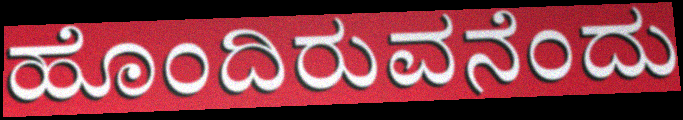
ಹೊಂದಿರುವನೆಂದು